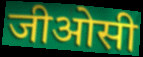
जीओसी